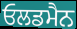
ਓਲਡਮੈਨ